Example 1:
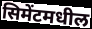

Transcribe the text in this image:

सिमेंटमधील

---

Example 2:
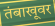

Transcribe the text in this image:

तंबाखूवर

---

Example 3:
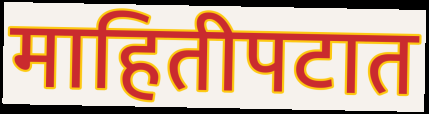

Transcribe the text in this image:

माहितीपटात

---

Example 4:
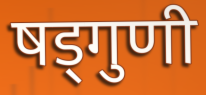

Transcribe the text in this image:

षड्गुणी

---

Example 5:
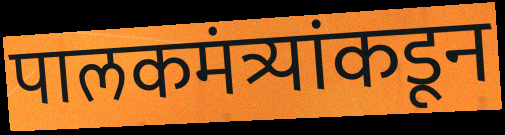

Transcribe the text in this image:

पालकमंत्र्यांकडून